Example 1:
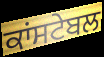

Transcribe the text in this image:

ਕਾਂਸਟੇਬਲ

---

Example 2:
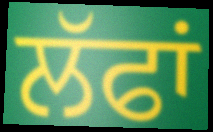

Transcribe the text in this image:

ਲੱਫਾਂ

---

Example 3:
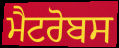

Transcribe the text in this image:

ਮੈਟਰੋਬਸ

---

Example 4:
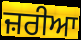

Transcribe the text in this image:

ਜ਼ਰੀਆ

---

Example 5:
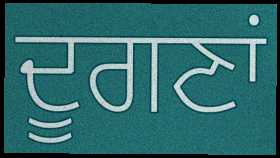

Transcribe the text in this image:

ਦੂਗਣਾਂ